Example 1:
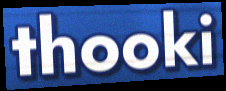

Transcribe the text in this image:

thooki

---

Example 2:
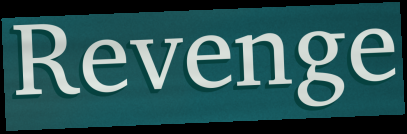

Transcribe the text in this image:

Revenge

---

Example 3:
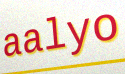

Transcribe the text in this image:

aalyo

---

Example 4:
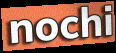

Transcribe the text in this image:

nochi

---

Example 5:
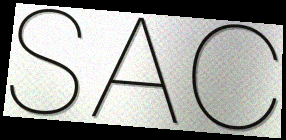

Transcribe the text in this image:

SAC